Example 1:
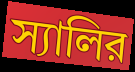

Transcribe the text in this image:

স্যালির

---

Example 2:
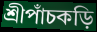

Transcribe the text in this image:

শ্রীপাঁচকড়ি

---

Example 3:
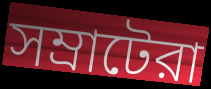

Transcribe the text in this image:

সম্রাটেরা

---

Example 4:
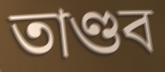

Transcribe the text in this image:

তাণ্ডব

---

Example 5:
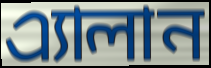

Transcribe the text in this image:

এ্যালান